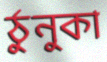
ঠুনুকা